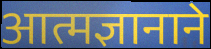
आत्मज्ञानाने